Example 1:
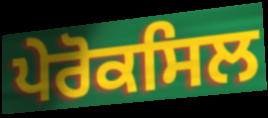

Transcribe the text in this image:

ਪੇਰੋਕਸਿਲ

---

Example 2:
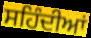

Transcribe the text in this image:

ਸਹਿੰਦੀਆਂ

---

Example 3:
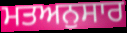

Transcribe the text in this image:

ਮਤਅਨੁਸਾਰ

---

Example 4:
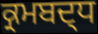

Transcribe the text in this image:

ਕ੍ਰਮਬਦ੍ਧ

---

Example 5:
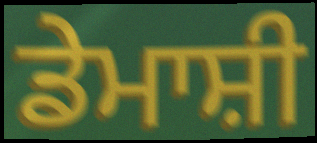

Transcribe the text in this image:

ਡੇਮਾਸ਼ੀ